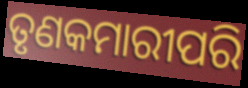
ତୃଣକମାରୀପରି